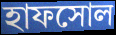
হাফসোল